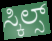
ಸ್ಕಿಲ್ಸ್